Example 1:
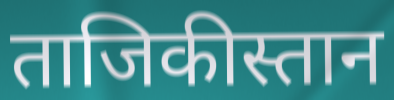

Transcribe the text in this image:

ताजिकीस्तान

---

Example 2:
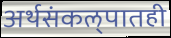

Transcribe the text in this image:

अर्थसंकल्पातही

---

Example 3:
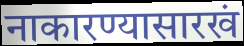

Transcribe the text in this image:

नाकारण्यासारखं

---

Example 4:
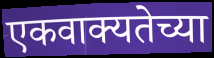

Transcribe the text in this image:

एकवाक्यतेच्या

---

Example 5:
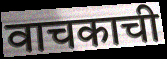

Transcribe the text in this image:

वाचकाची